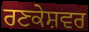
ਰਣਕੇਸ਼ਵਰ